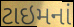
ટાઇમનાં